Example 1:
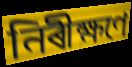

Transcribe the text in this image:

নিৰীক্ষণে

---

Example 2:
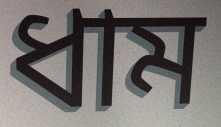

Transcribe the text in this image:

ধাম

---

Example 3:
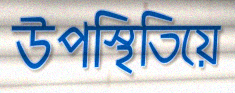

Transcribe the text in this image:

উপস্থিতিয়ে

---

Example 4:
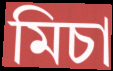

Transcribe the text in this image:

মিচা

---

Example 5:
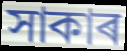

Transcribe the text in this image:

সাকাৰ